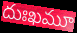
దుఃఖమూ